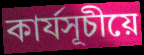
কাৰ্যসূচীয়ে